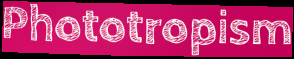
Phototropism